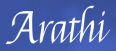
Arathi